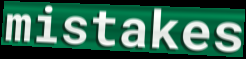
mistakes